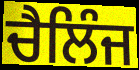
ਚੈਲਿੰਜ